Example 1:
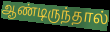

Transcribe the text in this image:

ஆண்டிருந்தால்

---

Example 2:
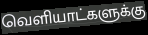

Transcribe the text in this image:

வெளியாட்களுக்கு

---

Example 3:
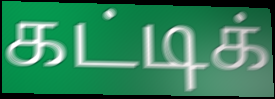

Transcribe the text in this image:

கட்டிக்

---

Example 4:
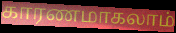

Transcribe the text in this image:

காரணமாகலாம்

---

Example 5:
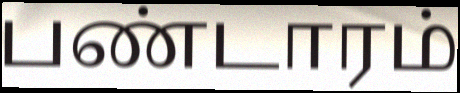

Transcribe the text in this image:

பண்டாரம்